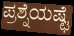
ಪ್ರಶ್ನೆಯಷ್ಟೆ